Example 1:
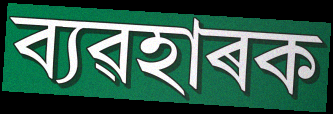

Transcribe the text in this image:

ব্যৱহাৰক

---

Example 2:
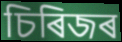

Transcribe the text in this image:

চিৰিজৰ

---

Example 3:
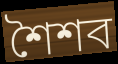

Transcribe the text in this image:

শৈশব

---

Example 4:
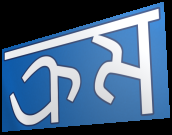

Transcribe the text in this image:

ক্ৰম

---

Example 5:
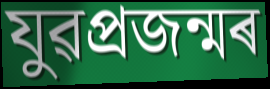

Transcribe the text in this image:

যুৱপ্ৰজন্মৰ